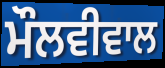
ਮੌਲਵੀਵਾਲ